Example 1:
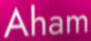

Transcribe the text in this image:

Aham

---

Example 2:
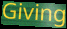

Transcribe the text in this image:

Giving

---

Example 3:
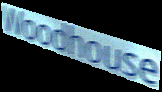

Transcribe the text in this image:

Woodhouse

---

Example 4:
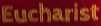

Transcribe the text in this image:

Eucharist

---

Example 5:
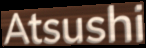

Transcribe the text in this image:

Atsushi